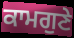
ਕਾਮਗੁਣੇ